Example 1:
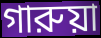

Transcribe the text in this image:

গারুয়া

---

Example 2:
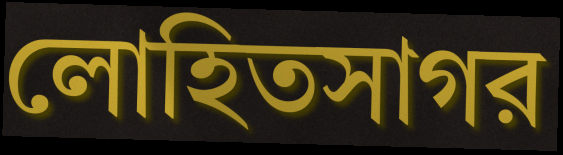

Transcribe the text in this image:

লোহিতসাগর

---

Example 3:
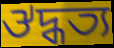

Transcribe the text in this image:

ঔদ্ধত্য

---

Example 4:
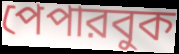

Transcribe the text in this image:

পেপারবুক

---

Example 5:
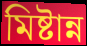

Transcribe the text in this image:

মিষ্টান্ন